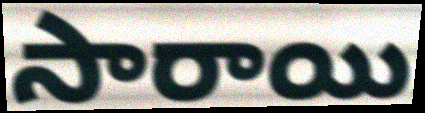
సారాయి